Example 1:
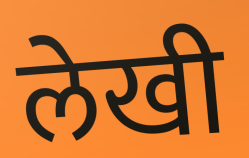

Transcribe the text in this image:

लेखी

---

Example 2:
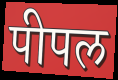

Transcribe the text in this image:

पीपल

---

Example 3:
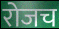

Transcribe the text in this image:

रोजच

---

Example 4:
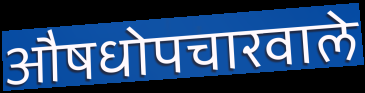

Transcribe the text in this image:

औषधोपचारवाले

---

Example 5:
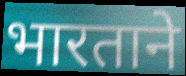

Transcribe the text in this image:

भारताने